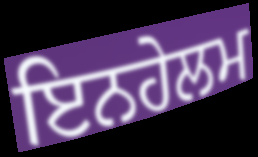
ਇਨਹੇਲਮ